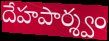
దేహపార్శ్వం